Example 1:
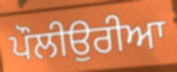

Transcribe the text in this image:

ਪੌਲੀਉਰੀਆ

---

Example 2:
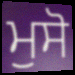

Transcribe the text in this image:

ਮੁਸੋ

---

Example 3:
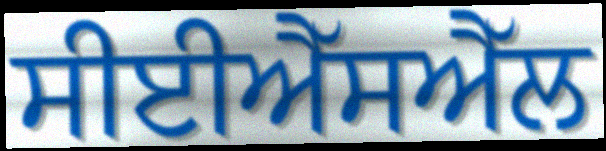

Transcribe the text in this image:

ਸੀਈਐੱਸਐੱਲ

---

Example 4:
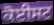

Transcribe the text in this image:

ਕੋਈਸਟ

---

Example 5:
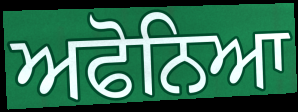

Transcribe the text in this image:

ਅਫੋਨਿਆ